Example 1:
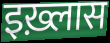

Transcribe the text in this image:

इख़्लास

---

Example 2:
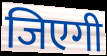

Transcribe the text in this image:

जिएगी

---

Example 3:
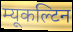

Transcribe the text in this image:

म्यूकल्टिन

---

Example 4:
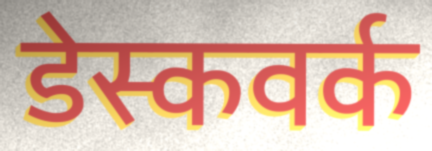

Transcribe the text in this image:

डेस्कवर्क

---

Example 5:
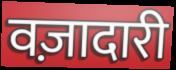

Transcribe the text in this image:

वज़ादारी